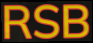
RSB